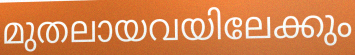
മുതലായവയിലേക്കും